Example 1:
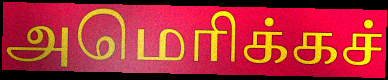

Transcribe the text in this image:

அமெரிக்கச்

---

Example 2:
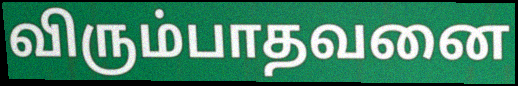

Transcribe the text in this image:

விரும்பாதவனை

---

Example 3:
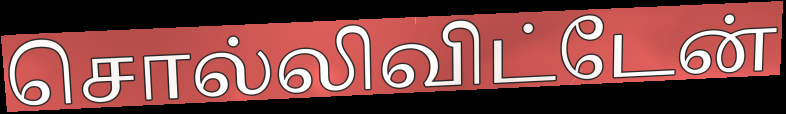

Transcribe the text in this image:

சொல்லிவிட்டேன்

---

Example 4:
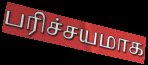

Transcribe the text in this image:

பரிச்சயமாக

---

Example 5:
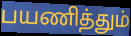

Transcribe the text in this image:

பயணித்தும்